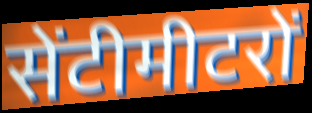
सेंटीमीटरों